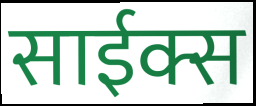
साईक्स